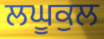
ਲਘੂਕੁਲ